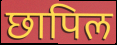
छापिल